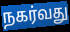
நகர்வது